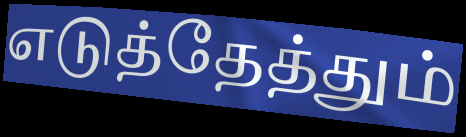
எடுத்தேத்தும்